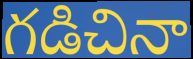
గడిచినా